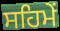
ਸਹਿਮੇਂ